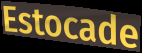
Estocade